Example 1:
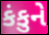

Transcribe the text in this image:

કંકુને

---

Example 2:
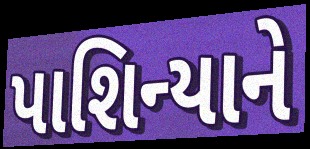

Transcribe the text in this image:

પાશિન્યાને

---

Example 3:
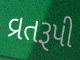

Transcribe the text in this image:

વ્રતરૂપી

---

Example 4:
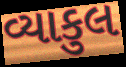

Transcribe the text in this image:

વ્યાકુલ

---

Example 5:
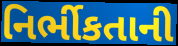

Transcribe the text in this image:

નિર્ભીકતાની